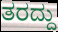
ತರದ್ದು